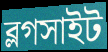
ব্লগসাইট